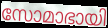
സോമാഭായി